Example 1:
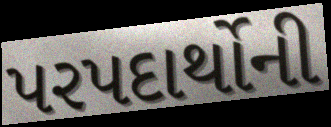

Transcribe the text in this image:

પરપદાર્થોની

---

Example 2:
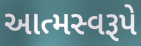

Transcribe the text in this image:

આત્મસ્વરૂપે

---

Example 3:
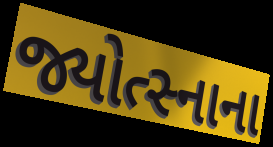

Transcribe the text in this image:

જ્યોત્સ્નાના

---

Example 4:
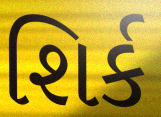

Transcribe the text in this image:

શિર્ક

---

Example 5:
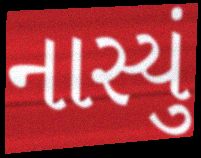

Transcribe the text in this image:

નાસ્યું